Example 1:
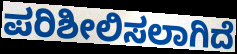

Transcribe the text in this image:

ಪರಿಶೀಲಿಸಲಾಗಿದೆ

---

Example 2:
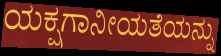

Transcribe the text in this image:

ಯಕ್ಷಗಾನೀಯತೆಯನ್ನು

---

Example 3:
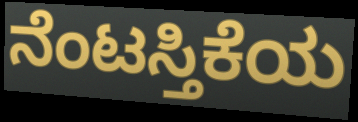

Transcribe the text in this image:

ನೆಂಟಸ್ತಿಕೆಯ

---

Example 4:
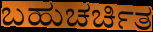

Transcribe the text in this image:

ಬಹುಚರ್ಚಿತ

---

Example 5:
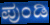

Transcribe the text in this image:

ಪುಂಡಿ